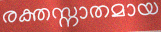
രക്തസ്നാതമായ